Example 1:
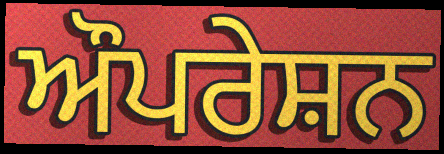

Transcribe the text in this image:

ਔਪਰੇਸ਼ਨ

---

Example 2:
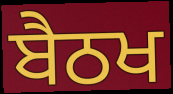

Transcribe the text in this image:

ਬੈਠਖ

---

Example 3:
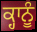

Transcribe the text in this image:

ਕ੍ਹਾਨੂੰ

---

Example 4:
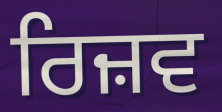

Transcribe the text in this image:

ਰਿਜ਼ਵ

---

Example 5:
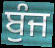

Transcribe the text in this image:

ਬੁੰਜ